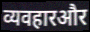
व्यवहारऔर